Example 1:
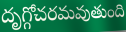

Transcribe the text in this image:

దృగ్గోచరమవుతుంది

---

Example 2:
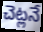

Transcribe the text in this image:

చెట్లనే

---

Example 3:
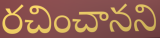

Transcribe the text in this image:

రచించానని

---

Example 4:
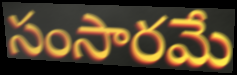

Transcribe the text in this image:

సంసారమే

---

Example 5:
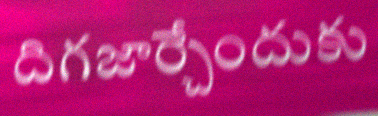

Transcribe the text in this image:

దిగజార్చేందుకు